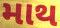
માથ